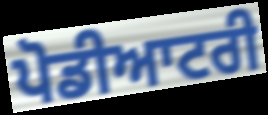
ਪੋਡੀਆਟਰੀ